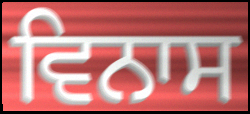
ਵਿਨਾਸ